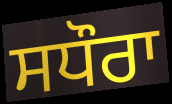
ਸਧੌਰਾ